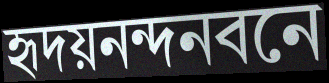
হৃদয়নন্দনবনে